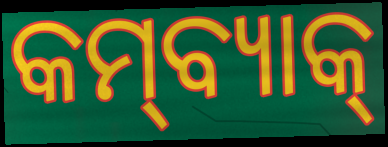
କମ୍‌ବ୍ୟାକ୍